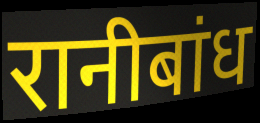
रानीबांध